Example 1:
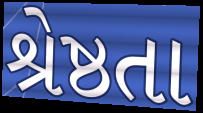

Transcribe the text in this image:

શ્રેષ્ઠતા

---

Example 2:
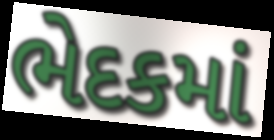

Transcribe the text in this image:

ભેદકમાં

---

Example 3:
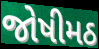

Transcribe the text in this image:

જોષીમઠ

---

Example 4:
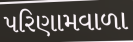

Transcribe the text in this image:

પરિણામવાળા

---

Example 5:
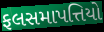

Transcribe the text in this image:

ફલસમાપત્તિયો